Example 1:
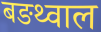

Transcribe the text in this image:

बङथ्वाल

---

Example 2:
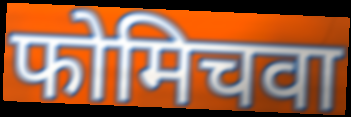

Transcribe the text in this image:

फोमिचवा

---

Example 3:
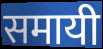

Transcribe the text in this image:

समायी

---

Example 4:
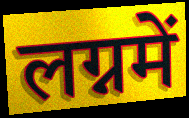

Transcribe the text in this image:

लग्नमें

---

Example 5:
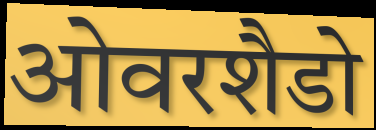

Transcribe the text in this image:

ओवरशैडो